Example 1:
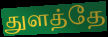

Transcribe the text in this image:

துளத்தே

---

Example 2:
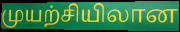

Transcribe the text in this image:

முயற்சியிலான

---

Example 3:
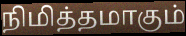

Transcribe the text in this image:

நிமித்தமாகும்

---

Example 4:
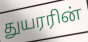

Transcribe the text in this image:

துயரரின்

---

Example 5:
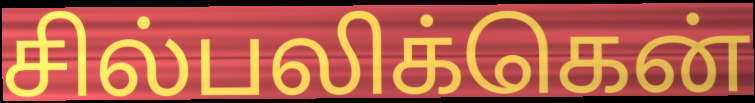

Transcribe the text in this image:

சில்பலிக்கென்